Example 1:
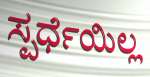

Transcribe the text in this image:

ಸ್ಪರ್ಧೆಯಿಲ್ಲ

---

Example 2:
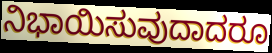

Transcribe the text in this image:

ನಿಭಾಯಿಸುವುದಾದರೂ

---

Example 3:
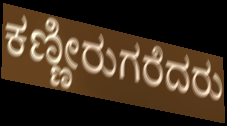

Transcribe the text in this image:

ಕಣ್ಣೀರುಗರೆದರು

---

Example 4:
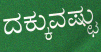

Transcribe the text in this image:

ದಕ್ಕುವಷ್ಟು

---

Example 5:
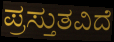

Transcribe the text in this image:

ಪ್ರಸ್ತುತವಿದೆ